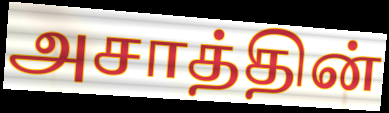
அசாத்தின்